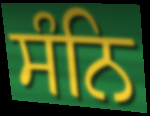
ਸੰਨਿ